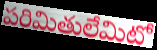
పరిమితులేమిటో